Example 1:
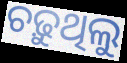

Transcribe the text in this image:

ଚଢ଼ୁଥିଲୁ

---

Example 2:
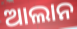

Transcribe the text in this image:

ଆଲାନ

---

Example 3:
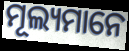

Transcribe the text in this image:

ମୂଲ୍ୟମାନେ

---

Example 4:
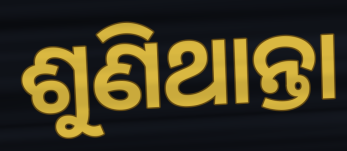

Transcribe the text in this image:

ଶୁଣିଥାନ୍ତା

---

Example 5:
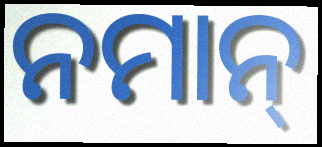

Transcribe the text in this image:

ନମାନ୍